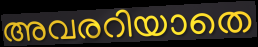
അവരറിയാതെ